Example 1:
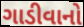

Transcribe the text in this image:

ગાડીવાનો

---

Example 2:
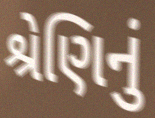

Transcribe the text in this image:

શ્રેણિનું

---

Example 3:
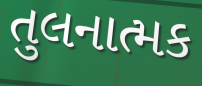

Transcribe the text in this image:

તુલનાત્મક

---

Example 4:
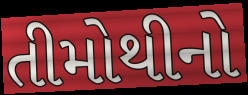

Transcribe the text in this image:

તીમોથીનો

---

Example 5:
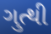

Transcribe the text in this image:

ગુત્થી